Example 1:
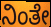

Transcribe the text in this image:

ನಿಂತೇ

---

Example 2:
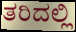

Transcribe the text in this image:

ತರಿದಲ್ಲಿ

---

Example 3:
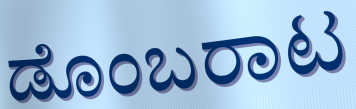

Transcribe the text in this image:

ಡೊಂಬರಾಟ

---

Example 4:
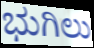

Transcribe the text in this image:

ಭುಗಿಲು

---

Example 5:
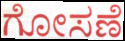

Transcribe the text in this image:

ಗೋಸಣೆ